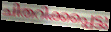
ചിതറിക്കപ്പെട്ടു